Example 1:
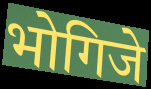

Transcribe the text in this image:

भोगिजे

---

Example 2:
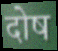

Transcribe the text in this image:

दोष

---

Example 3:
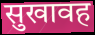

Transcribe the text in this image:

सुखावह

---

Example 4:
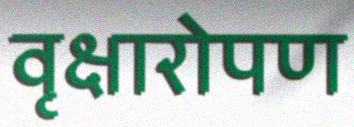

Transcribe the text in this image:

वृक्षारोपण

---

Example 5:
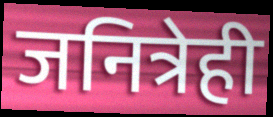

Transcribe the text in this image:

जनित्रेही